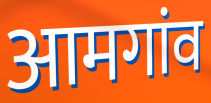
आमगांव